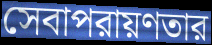
সেবাপরায়ণতার